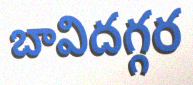
బావిదగ్గర